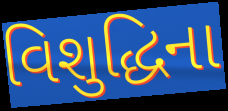
વિશુદ્ધિના